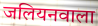
जलियनवाला